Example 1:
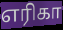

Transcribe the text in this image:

எரிகா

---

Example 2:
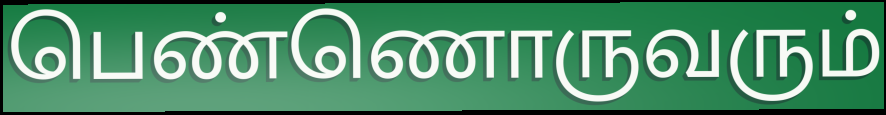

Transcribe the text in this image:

பெண்ணொருவரும்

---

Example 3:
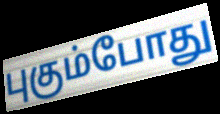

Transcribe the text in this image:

புகும்போது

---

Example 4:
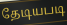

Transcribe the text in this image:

தேடியபடி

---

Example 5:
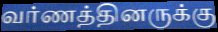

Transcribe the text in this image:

வர்ணத்தினருக்கு